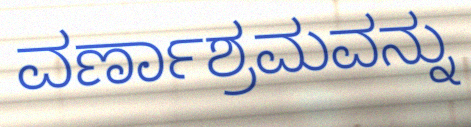
ವರ್ಣಾಶ್ರಮವನ್ನು